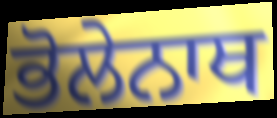
ਭੋਲੇਨਾਥ